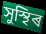
সুস্থিৰ